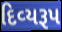
દિવ્‍યરૂપ